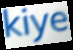
kiye